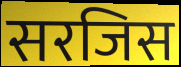
सरजिस